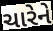
ચારેને